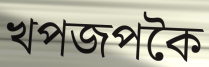
খপজপকৈ